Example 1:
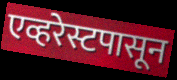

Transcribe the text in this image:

एव्हरेस्टपासून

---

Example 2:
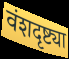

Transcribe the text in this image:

वंशदृष्ट्या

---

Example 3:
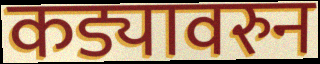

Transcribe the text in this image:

कड्यावरुन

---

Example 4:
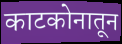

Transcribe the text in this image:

काटकोनातून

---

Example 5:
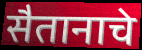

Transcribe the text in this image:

सैतानाचे